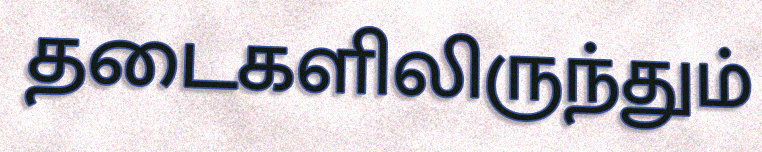
தடைகளிலிருந்தும்